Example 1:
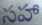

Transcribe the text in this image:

సహా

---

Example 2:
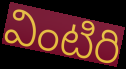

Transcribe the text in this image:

వింటిరి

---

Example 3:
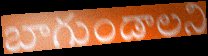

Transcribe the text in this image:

బాగుండాలని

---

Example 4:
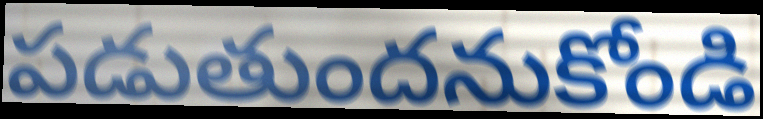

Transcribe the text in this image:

పడుతుందనుకోండి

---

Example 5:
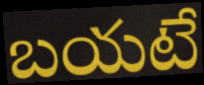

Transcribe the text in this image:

బయటే